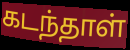
கடந்தாள்